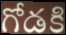
గోడకి